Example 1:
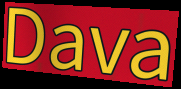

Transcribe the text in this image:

Dava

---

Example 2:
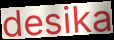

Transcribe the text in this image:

desika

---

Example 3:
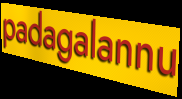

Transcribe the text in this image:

padagalannu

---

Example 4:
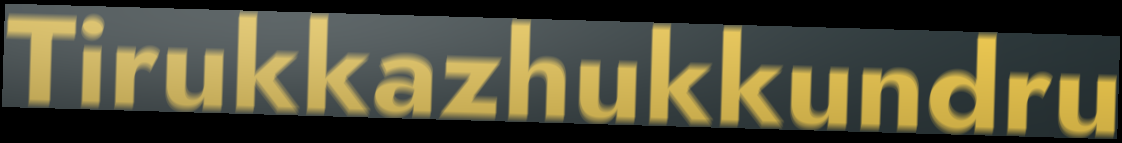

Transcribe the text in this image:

Tirukkazhukkundru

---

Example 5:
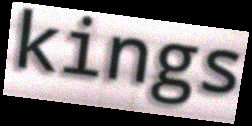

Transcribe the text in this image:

kings